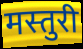
मस्तुरी